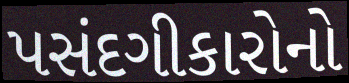
પસંદગીકારોનો